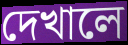
দেখালে